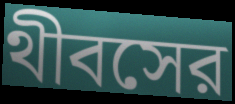
থীবসের